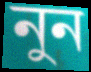
নুন